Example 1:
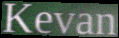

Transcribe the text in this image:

Kevan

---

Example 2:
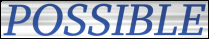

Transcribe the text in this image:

POSSIBLE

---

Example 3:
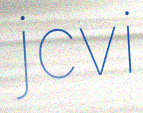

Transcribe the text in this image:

jcvi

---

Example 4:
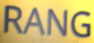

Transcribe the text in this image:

RANG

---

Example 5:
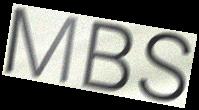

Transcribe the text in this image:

MBS